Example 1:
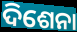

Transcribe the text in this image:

ଦିଶେନା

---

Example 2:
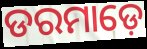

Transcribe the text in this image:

ଡରମାଡ଼େ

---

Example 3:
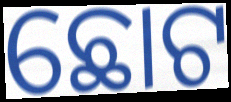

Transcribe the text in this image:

ଛୋଟ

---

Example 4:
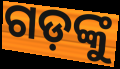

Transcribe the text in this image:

ଗଡ଼ଙ୍କୁ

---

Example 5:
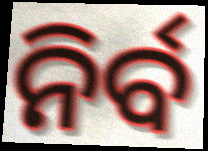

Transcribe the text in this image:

ନିର୍ବ